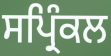
ਸਪ੍ਰਿੰਕਲ